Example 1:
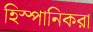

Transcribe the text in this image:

হিস্পানিকরা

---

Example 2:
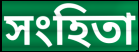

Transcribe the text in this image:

সংহিতা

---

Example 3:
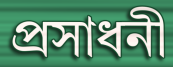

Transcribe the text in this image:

প্রসাধনী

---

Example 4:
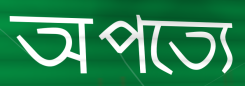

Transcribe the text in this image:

অপত্যে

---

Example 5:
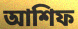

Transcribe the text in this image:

আশিফ